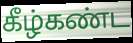
கீழ்கண்ட